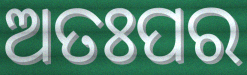
ଅତଃପର